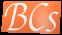
BCs